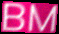
BM